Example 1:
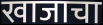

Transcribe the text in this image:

खाजाचा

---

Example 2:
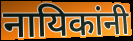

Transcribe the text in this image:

नायिकांनी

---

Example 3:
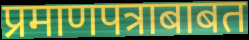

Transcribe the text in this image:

प्रमाणपत्राबाबत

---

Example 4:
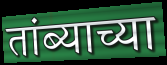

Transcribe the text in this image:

तांब्याच्या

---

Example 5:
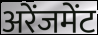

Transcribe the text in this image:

अरेंजमेंट